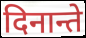
दिनान्ते